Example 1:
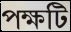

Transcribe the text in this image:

পক্ষটি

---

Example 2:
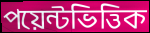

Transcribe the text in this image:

পয়েন্টভিত্তিক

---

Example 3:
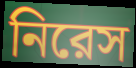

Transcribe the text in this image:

নিরেস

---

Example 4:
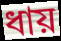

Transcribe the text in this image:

ধায়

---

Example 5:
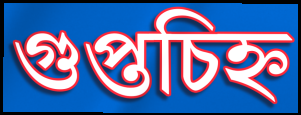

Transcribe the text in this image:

গুপ্তচিহ্ন